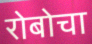
रोबोचा